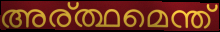
അര്ത്ഥമെന്ത്